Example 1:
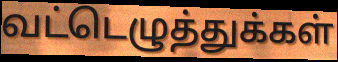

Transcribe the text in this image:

வட்டெழுத்துக்கள்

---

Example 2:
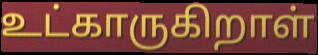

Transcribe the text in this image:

உட்காருகிறாள்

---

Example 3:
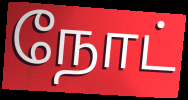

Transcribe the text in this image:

நோட்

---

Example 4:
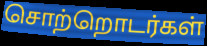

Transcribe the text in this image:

சொற்றொடர்கள்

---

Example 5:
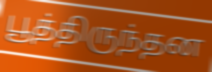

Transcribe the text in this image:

பூத்திருந்தன